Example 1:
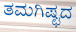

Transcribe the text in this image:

ತಮಗಿಷ್ಟದ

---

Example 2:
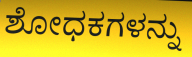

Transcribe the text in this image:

ಶೋಧಕಗಳನ್ನು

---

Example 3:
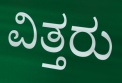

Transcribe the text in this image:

ವಿತ್ತರು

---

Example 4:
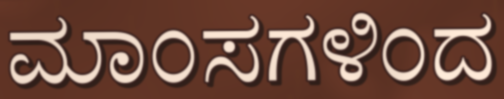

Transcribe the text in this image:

ಮಾಂಸಗಳಿಂದ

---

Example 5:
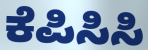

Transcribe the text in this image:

ಕೆಪಿಸಿಸಿ